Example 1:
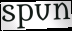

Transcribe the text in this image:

spun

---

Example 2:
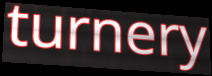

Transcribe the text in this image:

turnery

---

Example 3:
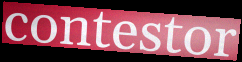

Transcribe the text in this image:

contestor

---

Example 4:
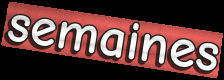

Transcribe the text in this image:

semaines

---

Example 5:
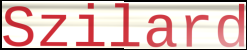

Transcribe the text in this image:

Szilard